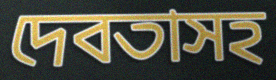
দেবতাসহ